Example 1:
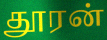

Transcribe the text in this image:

தூரன்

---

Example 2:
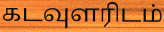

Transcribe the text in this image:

கடவுளரிடம்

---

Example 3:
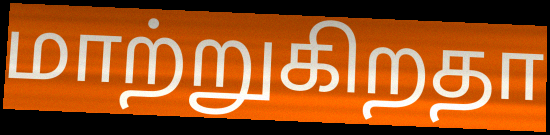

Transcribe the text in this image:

மாற்றுகிறதா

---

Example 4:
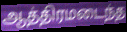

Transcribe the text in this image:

ஆத்திரமடைந்த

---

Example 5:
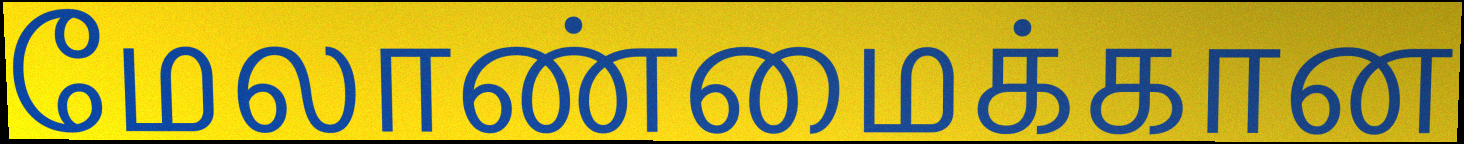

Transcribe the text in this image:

மேலாண்மைக்கான